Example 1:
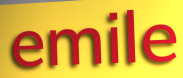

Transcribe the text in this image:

emile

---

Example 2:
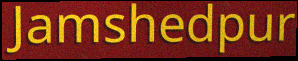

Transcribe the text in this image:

Jamshedpur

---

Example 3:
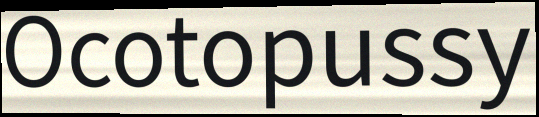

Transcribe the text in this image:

Ocotopussy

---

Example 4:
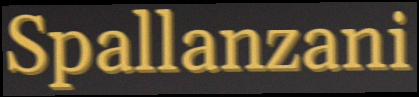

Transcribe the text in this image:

Spallanzani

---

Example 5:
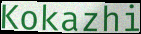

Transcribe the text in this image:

Kokazhi